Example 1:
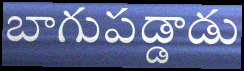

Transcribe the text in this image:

బాగుపడ్డాడు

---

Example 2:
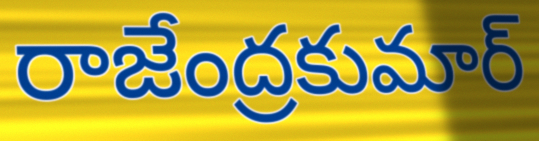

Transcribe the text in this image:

రాజేంద్రకుమార్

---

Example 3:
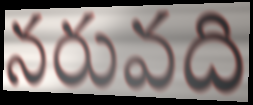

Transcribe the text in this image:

నరువది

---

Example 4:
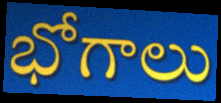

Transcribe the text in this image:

భోగాలు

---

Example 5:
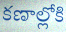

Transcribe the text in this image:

కణాల్లోకి